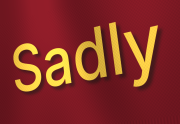
Sadly